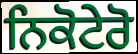
ਨਿਕੋਟੇਰੋ